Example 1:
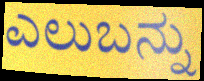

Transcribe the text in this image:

ಎಲುಬನ್ನು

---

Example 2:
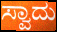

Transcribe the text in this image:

ಸ್ವಾದು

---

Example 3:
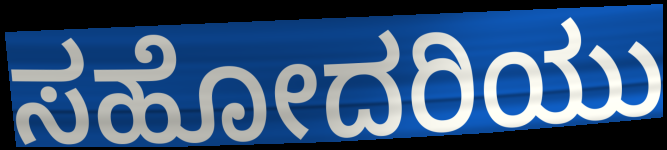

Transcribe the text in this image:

ಸಹೋದರಿಯು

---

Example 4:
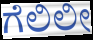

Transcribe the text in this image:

ಗೆಲಿಲೀ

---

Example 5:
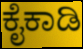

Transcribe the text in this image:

ಕೈಕಾಡಿ